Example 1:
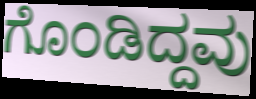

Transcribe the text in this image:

ಗೊಂಡಿದ್ದವು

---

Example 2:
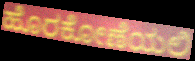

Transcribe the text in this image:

ಹೊರಕೋಣೆಯಲಿ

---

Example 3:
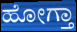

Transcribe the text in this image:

ಹೋಗ್ತಾ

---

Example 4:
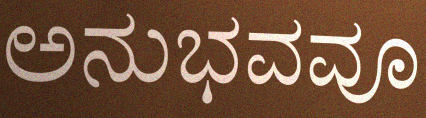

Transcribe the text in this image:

ಅನುಭವವೂ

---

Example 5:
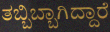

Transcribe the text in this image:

ತಬ್ಬಿಬ್ಬಾಗಿದ್ದಾರೆ